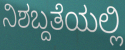
ನಿಶಬ್ದತೆಯಲ್ಲಿ